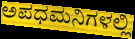
ಅಪಧಮನಿಗಳಲ್ಲಿ